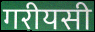
गरीयसी